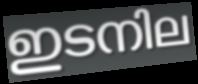
ഇടനില